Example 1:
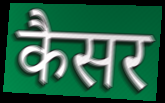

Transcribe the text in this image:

कैसर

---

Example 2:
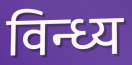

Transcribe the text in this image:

विन्ध्य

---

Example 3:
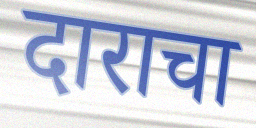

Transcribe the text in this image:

दाराचा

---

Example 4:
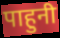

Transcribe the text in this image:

पाहुनी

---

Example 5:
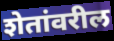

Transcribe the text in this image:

शेतांवरील